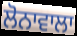
ਲੋਨਾਵਾਲਾ